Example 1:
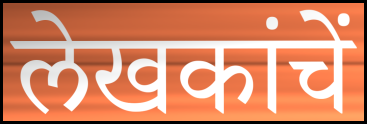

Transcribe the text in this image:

लेखकांचें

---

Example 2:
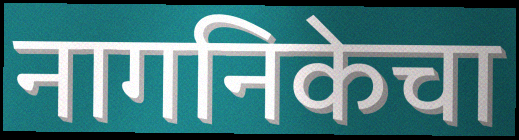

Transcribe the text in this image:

नागनिकेचा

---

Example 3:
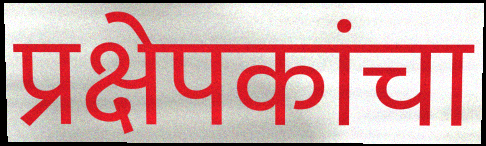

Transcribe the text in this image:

प्रक्षेपकांचा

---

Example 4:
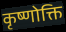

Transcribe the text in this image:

कृष्णोक्ति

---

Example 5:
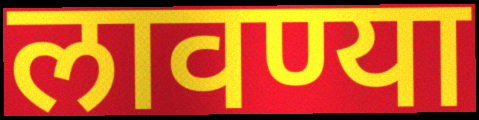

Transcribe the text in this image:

लावण्या